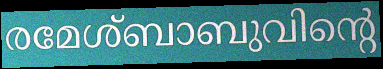
രമേശ്ബാബുവിന്റെ